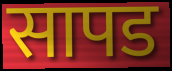
सापड